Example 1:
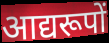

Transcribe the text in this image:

आद्यरूपों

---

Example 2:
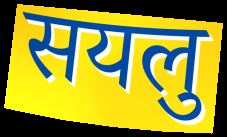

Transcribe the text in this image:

सयलु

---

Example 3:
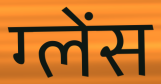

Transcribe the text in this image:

ग्लेंस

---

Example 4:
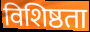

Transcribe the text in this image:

विशिष्ठता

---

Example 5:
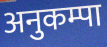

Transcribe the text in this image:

अनुकम्पा